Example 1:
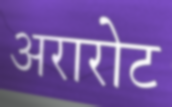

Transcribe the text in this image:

अरारोट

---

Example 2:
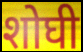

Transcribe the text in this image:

शोघी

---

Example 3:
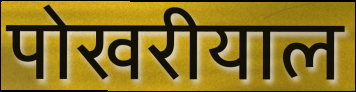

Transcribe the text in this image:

पोखरीयाल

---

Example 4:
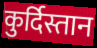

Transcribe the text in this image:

कुर्दिस्तान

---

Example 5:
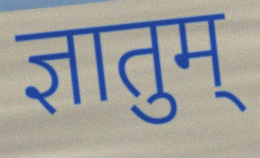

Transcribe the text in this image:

ज्ञातुम्